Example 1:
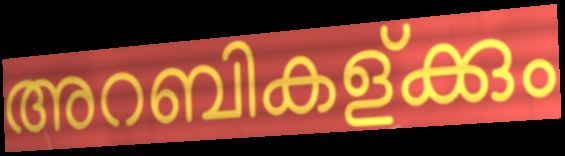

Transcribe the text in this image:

അറബികള്ക്കും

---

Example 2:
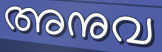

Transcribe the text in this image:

അനുവ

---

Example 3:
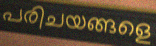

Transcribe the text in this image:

പരിചയങ്ങളെ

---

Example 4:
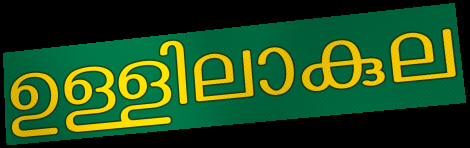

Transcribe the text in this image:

ഉള്ളിലാകുല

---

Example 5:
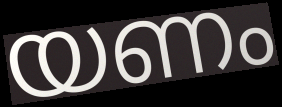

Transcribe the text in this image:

യണം